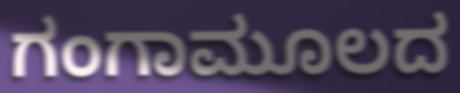
ಗಂಗಾಮೂಲದ